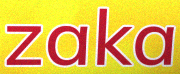
zaka